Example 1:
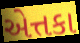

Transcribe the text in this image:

એત્તકા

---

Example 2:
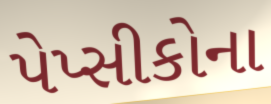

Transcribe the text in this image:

પેપ્સીકોના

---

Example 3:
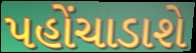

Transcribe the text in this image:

પહોંચાડાશે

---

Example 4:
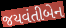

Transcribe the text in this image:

જયવંતીબેન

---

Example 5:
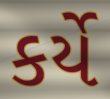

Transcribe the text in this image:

કર્યે